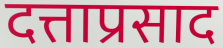
दत्ताप्रसाद